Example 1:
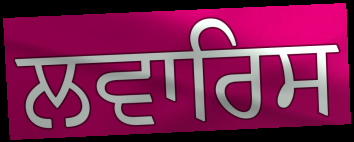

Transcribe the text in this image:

ਲਵਾਰਿਸ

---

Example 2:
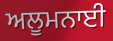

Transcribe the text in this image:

ਅਲੂਮਨਾਈ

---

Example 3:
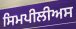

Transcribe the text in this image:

ਸਿਮਪੀਲੀਅਸ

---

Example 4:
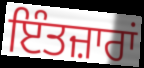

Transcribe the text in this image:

ਇੰਤਜ਼ਾਰਾਂ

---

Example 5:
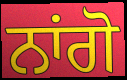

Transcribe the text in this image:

ਨਾਂਗੋ